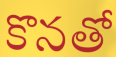
కొనతో